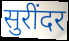
सुरींदर